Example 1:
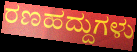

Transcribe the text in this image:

ರಣಹದ್ದುಗಳು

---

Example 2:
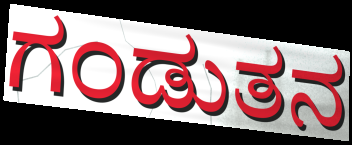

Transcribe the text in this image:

ಗಂಡುತನ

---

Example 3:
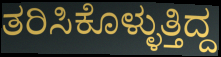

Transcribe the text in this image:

ತರಿಸಿಕೊಳ್ಳುತ್ತಿದ್ದ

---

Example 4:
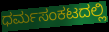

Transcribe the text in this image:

ಧರ್ಮಸಂಕಟದಲ್ಲಿ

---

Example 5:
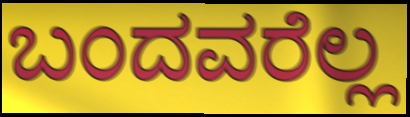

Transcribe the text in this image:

ಬಂದವರೆಲ್ಲ